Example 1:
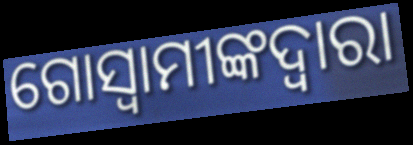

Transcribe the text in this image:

ଗୋସ୍ୱାମୀଙ୍କଦ୍ୱାରା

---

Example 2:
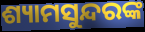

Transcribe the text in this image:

ଶ୍ୟାମସୁନ୍ଦରଙ୍କ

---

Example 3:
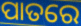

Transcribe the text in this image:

ପାତରେ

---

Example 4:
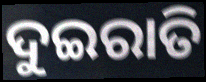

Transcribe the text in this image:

ଦୁଇରାତି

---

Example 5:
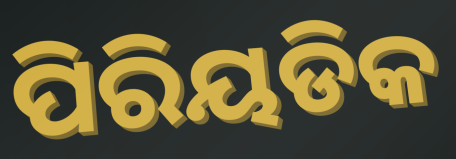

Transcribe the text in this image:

ପିରିୟଡିକ